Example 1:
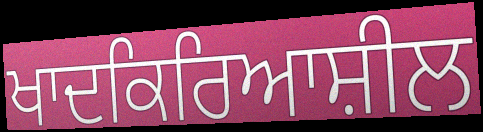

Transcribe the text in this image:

ਖਾਦਕਿਰਿਆਸ਼ੀਲ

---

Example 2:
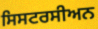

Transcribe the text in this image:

ਸਿਸਟਰਸੀਅਨ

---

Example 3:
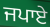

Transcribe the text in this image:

ਜਪਾਏ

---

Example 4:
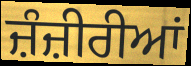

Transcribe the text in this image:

ਜ਼ੰਜ਼ੀਰੀਆਂ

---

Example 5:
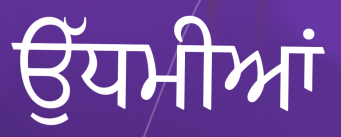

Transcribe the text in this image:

ਉੱਧਮੀਆਂ